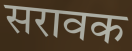
सरावक